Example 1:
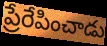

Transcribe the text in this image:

ప్రేరేపించాడు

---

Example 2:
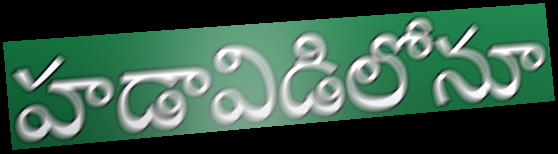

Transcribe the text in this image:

హడావిడిలోనూ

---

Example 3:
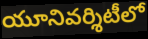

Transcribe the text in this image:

యూనివర్శిటీలో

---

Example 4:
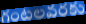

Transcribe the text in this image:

గంటలవరకు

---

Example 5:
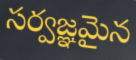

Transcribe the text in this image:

సర్వజ్ఞమైన